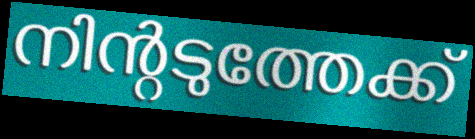
നിന്റടുത്തേക്ക്